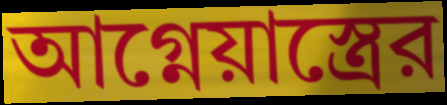
আগ্নেয়াস্ত্রের